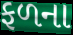
ફળના